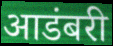
आडंबरी